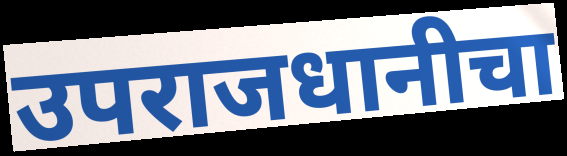
उपराजधानीचा